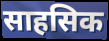
साहसिक